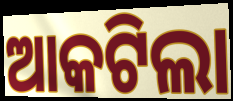
ଆକଟିଲା